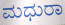
ಮಧುರಾ